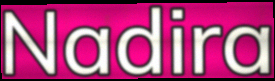
Nadira